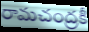
రామచంద్రకీ